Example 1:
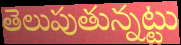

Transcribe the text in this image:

తెలుపుతున్నట్టు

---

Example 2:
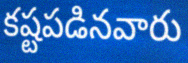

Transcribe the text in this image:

కష్టపడినవారు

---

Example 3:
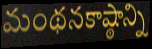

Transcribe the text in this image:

మంథనకాష్ఠాన్ని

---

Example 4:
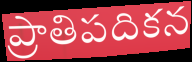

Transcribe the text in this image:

ప్రాతిపదికన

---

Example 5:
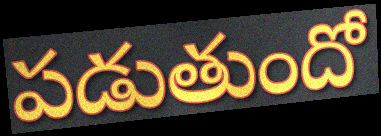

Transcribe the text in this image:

పడుతుందో